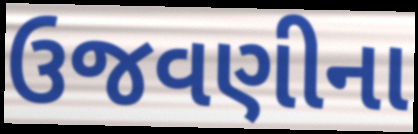
ઉજવણીના